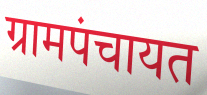
ग्रामपंचायत